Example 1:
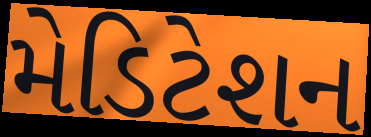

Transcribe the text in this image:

મેડિટેશન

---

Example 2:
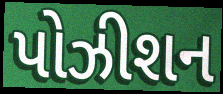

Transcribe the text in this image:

પોઝીશન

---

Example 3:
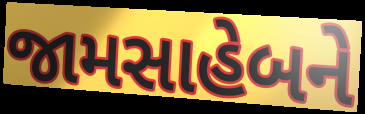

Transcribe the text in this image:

જામસાહેબને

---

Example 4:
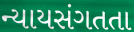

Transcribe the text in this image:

ન્યાયસંગતતા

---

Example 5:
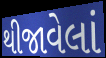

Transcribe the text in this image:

થીજાવેલાં